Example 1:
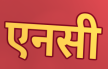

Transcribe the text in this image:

एनसी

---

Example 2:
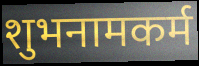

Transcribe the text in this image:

शुभनामकर्म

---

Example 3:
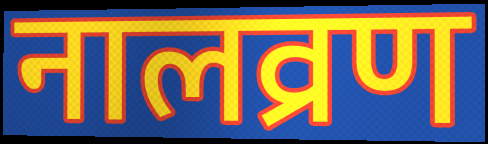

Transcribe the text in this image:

नालव्रण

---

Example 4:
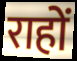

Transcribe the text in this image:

राहों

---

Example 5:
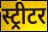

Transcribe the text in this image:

स्ट्रीटर